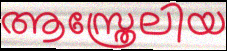
ആസ്ത്രേലിയ